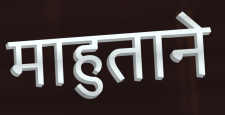
माहुताने